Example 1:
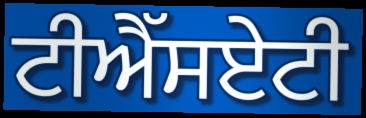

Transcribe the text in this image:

ਟੀਐੱਸਏਟੀ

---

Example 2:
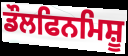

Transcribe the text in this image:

ਡੌਲਫਿਨਮਿਸ਼ੂ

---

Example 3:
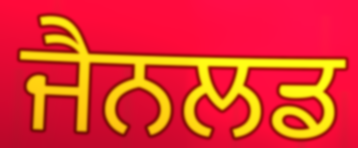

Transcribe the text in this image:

ਜੈਨਲਡ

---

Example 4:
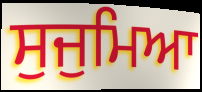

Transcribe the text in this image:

ਸੁਜੁਮਿਆ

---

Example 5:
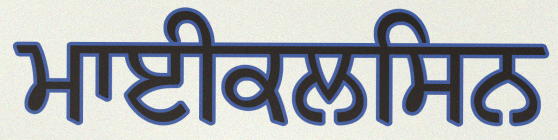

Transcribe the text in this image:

ਮਾਈਕਲਸਿਨ